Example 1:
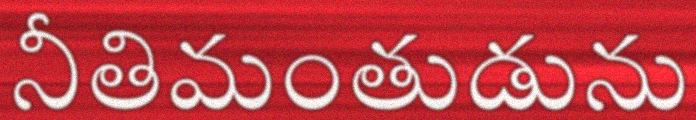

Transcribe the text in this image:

నీతిమంతుడును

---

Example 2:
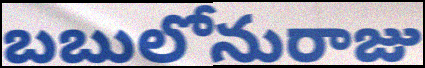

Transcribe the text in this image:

బబులోనురాజు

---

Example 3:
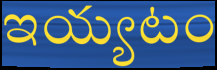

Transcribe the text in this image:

ఇయ్యటం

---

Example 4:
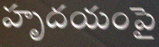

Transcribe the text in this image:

హృదయంపై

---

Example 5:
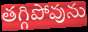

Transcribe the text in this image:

తగ్గిపోవును